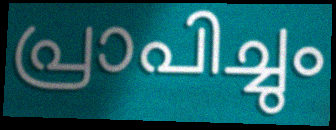
പ്രാപിച്ചും